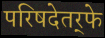
परिषदेतर्फे